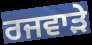
ਰਜਵਾੜੇ